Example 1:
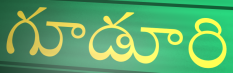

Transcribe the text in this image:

గూడూరి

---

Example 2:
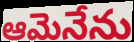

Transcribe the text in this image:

ఆమెనేను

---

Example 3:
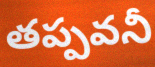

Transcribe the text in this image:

తప్పవనీ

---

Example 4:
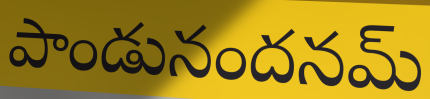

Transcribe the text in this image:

పాండునందనమ్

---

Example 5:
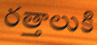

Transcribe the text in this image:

రత్తాలుకి